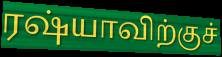
ரஷ்யாவிற்குச்